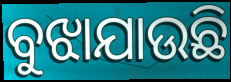
ବୁଝାଯାଉଛି